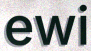
ewi